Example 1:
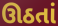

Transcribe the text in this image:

ઊઠતાં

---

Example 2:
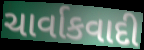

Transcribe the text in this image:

ચાર્વાકવાદી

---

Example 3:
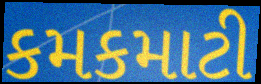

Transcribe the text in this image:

કમકમાટી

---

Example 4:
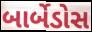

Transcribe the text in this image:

બાર્બેડોસ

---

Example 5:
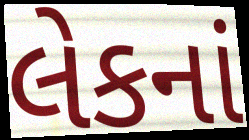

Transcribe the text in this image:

લેકનાં